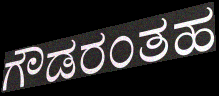
ಗೌಡರಂತಹ